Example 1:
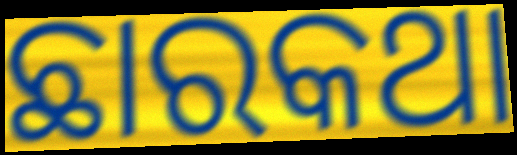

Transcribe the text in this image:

ଛାରକଥା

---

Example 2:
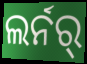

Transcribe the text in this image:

ଲର୍ନର୍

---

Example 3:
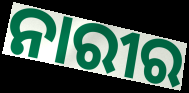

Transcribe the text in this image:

ନାରୀର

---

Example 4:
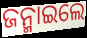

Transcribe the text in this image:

ଜନ୍ମାଇଲେ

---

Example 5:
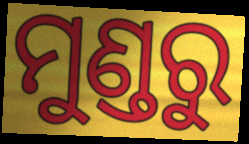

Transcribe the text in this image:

ମୁଣ୍ଡରୁ